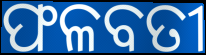
ଫଳବତୀ